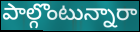
పాల్గొంటున్నారా